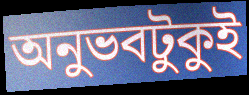
অনুভবটুকুই